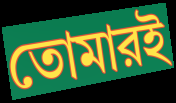
তোমারই